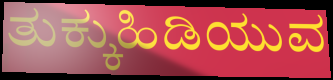
ತುಕ್ಕುಹಿಡಿಯುವ